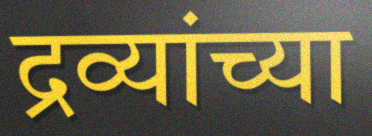
द्रव्यांच्या